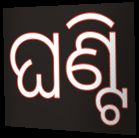
ଘଣ୍ଟି